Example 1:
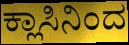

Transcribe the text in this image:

ಕ್ಲಾಸಿನಿಂದ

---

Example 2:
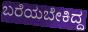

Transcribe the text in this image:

ಬರೆಯಬೇಕಿದ್ದ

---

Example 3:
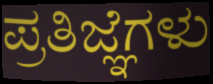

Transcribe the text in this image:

ಪ್ರತಿಜ್ಞೆಗಳು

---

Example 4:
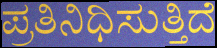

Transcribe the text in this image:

ಪ್ರತಿನಿಧಿಸುತ್ತಿದೆ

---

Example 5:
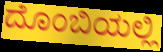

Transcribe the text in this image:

ದೊಂಬಿಯಲ್ಲಿ